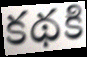
కథకి